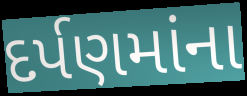
દર્પણમાંના